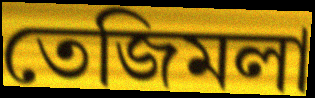
তেজিমলা